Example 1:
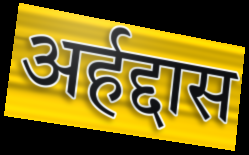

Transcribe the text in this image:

अर्हद्दास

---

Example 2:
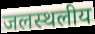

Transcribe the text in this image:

जलस्थलीय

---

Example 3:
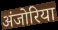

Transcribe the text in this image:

अंजोरिया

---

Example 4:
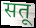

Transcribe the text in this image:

सतू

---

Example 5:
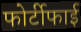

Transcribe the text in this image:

फोर्टीफाई